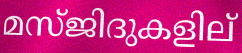
മസ്ജിദുകളില്